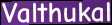
Valthukal